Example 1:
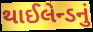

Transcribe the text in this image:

થાઈલેન્ડનું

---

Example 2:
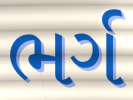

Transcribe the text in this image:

ભર્ગ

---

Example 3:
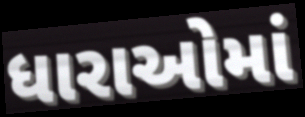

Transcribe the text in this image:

ધારાઓમાં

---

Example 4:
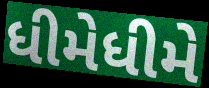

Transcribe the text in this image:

ધીમેધીમે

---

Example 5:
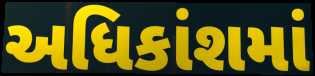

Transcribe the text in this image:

અધિકાંશમાં